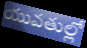
యువతుల్లో